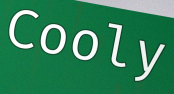
Cooly